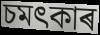
চমৎকাৰ